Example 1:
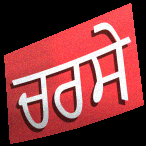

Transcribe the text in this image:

ਚਰਸੇ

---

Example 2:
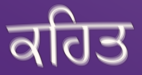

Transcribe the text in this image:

ਕਹਿਤ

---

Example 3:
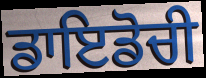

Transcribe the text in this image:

ਡਾਇਡੋਚੀ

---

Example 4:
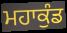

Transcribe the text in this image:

ਮਹਾਕੁੰਡ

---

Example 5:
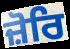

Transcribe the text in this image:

ਜ਼ੋਰਿ